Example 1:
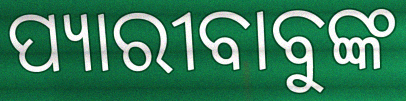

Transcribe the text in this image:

ପ୍ୟାରୀବାବୁଙ୍କ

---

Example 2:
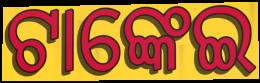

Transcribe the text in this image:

ଟାଙ୍କେଇ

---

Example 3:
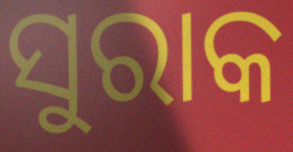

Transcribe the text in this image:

ସୁରାକ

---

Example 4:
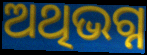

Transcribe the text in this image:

ଅଥିଭଗ୍ନ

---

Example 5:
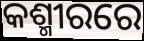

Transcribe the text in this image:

କଶ୍ମୀରରେ